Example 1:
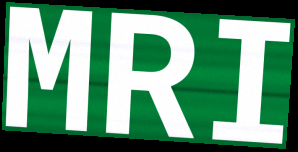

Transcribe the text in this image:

MRI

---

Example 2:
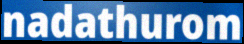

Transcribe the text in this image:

nadathurom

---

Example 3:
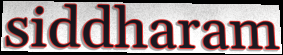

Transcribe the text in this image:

siddharam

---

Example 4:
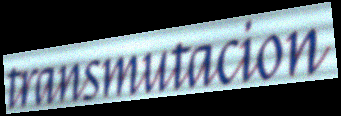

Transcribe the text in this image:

transmutacion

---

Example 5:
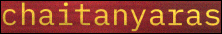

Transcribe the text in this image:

chaitanyaras